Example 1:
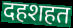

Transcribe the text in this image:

दहशहत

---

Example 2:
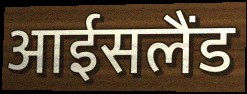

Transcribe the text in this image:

आईसलैंड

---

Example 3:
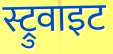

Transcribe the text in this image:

स्ट्रुवाइट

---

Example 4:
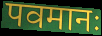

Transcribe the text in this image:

पवमानः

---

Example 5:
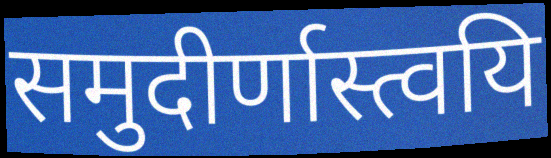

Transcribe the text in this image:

समुदीर्णास्त्वयि